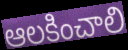
ఆలకించాలి